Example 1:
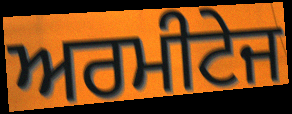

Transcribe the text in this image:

ਅਰਮੀਟੇਜ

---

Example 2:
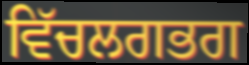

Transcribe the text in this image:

ਵਿੱਚਲਗਭਗ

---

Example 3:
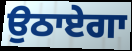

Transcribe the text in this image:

ਉਠਾਏਗਾ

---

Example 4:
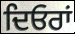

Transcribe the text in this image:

ਦਿਓਰਾਂ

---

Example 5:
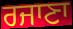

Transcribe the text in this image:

ਰਜਾਣਾ